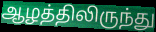
ஆழத்திலிருந்து